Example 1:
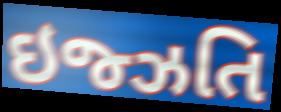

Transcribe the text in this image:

ઇજ્ઝતિ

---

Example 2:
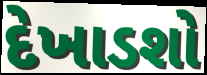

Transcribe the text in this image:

દેખાડશો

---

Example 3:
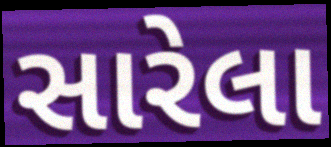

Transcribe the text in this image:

સારેલા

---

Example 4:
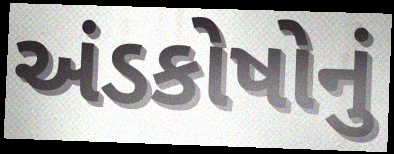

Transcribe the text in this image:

અંડકોષોનું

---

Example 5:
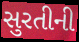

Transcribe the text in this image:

સુરતીની